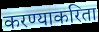
करण्याकरिता